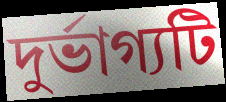
দুর্ভাগ্যটি